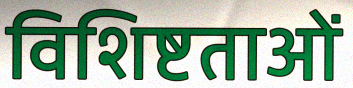
विशिष्टताओं